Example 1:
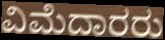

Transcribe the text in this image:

ವಿಮೆದಾರರು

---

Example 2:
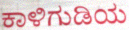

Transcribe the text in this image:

ಕಾಳಿಗುಡಿಯ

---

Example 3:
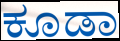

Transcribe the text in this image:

ಕೂಡಾ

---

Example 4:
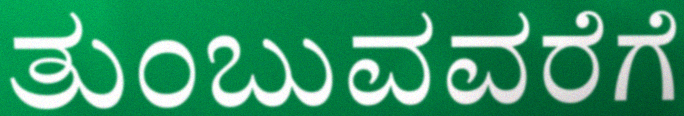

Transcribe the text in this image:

ತುಂಬುವವರೆಗೆ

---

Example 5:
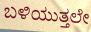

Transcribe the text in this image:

ಬಳಿಯುತ್ತಲೇ